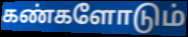
கண்களோடும்